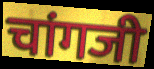
चांगजी